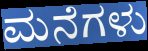
ಮನೆಗಳು